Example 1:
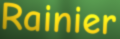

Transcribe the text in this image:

Rainier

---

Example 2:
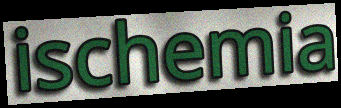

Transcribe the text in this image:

ischemia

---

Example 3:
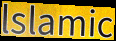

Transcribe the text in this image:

lslamic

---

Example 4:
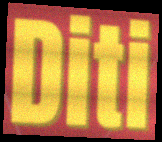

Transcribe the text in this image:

Diti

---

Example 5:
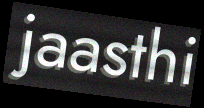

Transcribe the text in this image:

jaasthi